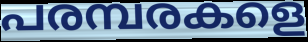
പരമ്പരകളെ